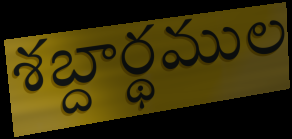
శబ్దార్థముల